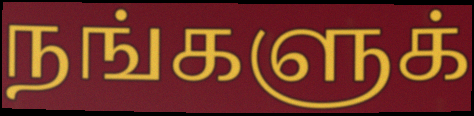
நங்களுக்